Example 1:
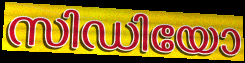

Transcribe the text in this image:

സിഡിയോ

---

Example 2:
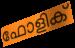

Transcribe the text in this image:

ഫോളിക്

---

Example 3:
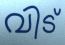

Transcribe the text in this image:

വിട്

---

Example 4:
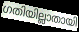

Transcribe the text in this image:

ഗതിയില്ലാതായി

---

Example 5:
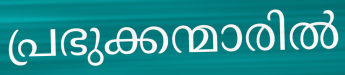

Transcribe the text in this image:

പ്രഭുക്കന്മാരിൽ